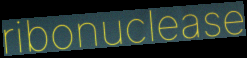
ribonuclease